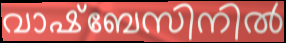
വാഷ്ബേസിനിൽ